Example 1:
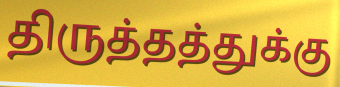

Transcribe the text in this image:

திருத்தத்துக்கு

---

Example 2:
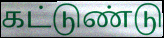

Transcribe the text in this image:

கட்டுண்டு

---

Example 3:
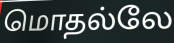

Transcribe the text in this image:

மொதல்லே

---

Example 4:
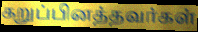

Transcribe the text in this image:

கறுப்பினத்தவர்கள்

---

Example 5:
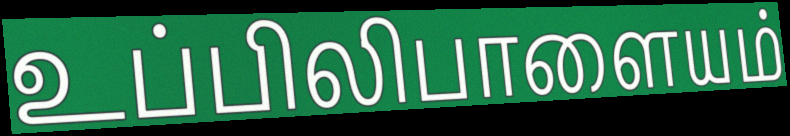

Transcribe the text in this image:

உப்பிலிபாளையம்